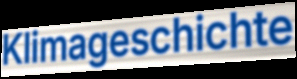
Klimageschichte